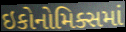
ઇકોનોમિક્સમાં